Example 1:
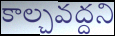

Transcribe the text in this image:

కాల్చవద్దని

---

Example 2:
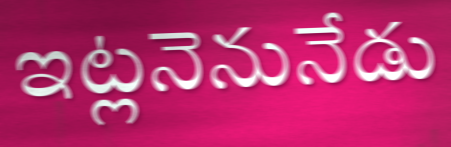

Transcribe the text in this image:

ఇట్లనెనునేడు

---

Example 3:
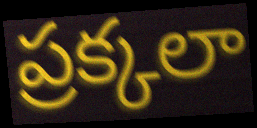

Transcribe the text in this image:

ప్రక్కలా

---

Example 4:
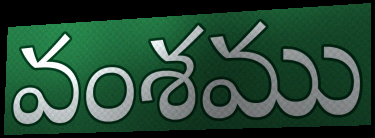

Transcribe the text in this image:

వంశము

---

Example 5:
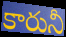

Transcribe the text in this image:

కారునీ